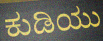
ಕುಡಿಯು